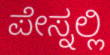
ಪೇಸ್ನಲ್ಲಿ